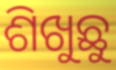
ଶିଖୁଛୁ